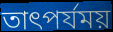
তাৎপর্যময়